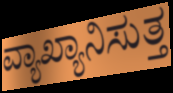
ವ್ಯಾಖ್ಯಾನಿಸುತ್ತ